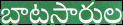
బాటసారుల